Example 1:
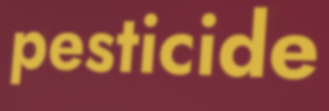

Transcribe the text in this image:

pesticide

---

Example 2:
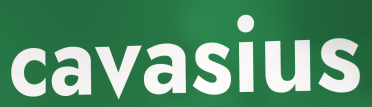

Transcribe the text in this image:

cavasius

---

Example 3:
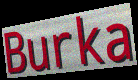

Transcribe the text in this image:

Burka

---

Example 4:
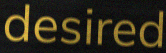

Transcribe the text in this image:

desired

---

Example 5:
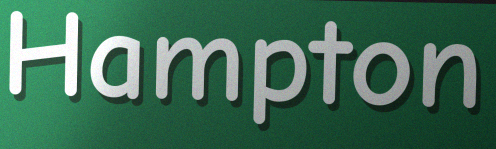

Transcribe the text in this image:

Hampton